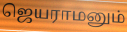
ஜெயராமனும்